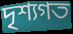
দৃশ্যগত